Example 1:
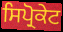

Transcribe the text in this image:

ਸਿਪ੍ਰੋਕੇਟ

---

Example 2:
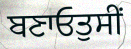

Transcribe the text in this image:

ਬਣਾਓਤੁਸੀਂ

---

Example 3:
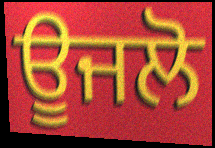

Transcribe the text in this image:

ਊਜਲੋ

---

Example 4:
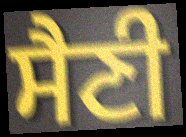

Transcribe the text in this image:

ਸੈਣੀ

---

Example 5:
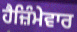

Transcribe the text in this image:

ਹੈਜ਼ਿੰਮੇਵਾਰ